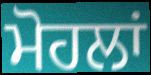
ਮੋਹਲਾਂ